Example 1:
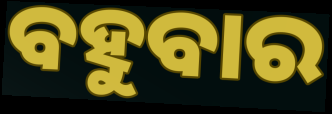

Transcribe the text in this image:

ବହୁବାର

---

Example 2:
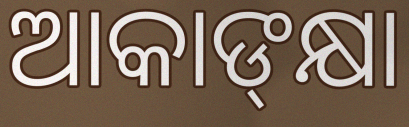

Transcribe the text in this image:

ଆକାଙ୍‌କ୍ଷା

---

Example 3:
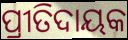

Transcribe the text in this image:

ପ୍ରୀତିଦାୟକ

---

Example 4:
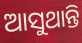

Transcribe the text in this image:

ଆସୁଥାନ୍ତି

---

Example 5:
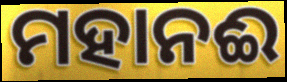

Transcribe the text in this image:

ମହାନଈ